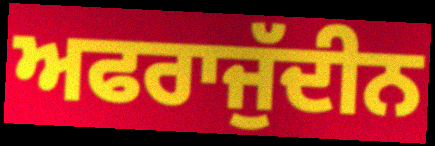
ਅਫਰਾਜੁੱਦੀਨ